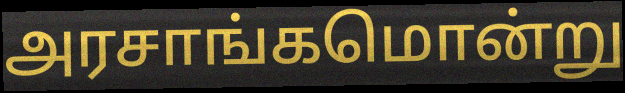
அரசாங்கமொன்று